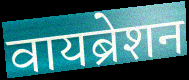
वायब्रेशन